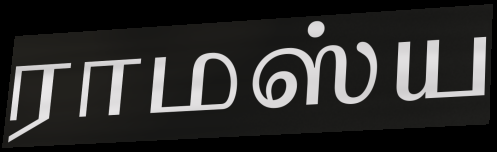
ராமஸ்ய